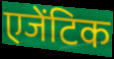
एजेंटिक